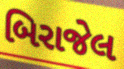
બિરાજેલ